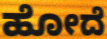
ಹೋದೆ